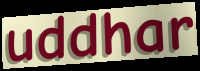
uddhar